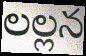
లల్లన